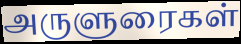
அருளுரைகள்